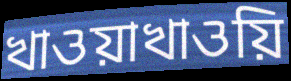
খাওয়াখাওয়ি